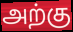
அற்கு